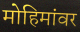
मोहिमांवर